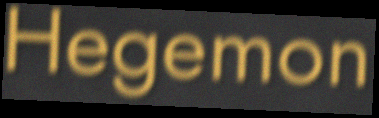
Hegemon